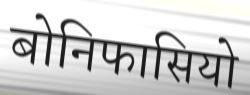
बोनिफासियो